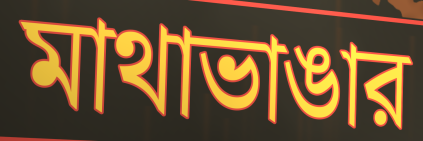
মাথাভাঙার